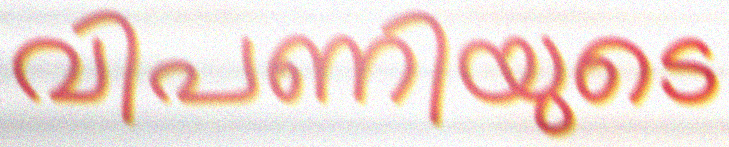
വിപണിയുടെ